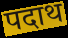
पदाथ